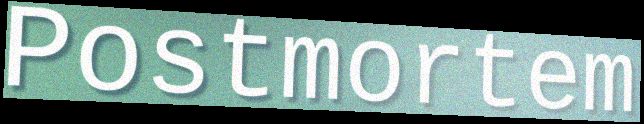
Postmortem